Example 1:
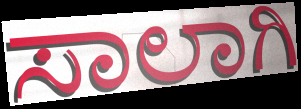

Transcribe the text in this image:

ಸಾಲಾಗಿ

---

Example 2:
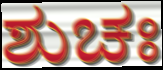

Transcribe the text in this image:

ಶುಚಃ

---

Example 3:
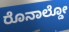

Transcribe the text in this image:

ರೊನಾಲ್ಡೋ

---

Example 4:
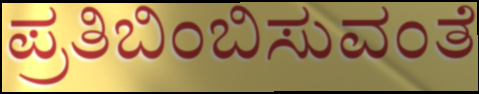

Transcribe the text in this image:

ಪ್ರತಿಬಿಂಬಿಸುವಂತೆ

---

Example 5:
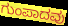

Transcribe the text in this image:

ಗುಂಪಾದವು